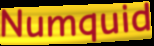
Numquid